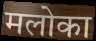
मलोका